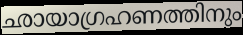
ഛായാഗ്രഹണത്തിനും